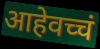
आहेवच्चं